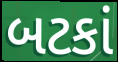
બટકાં